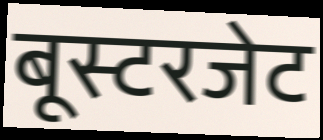
बूस्टरजेट